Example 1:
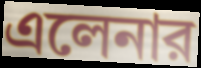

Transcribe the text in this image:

এলেনার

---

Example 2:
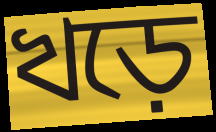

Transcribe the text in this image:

খড়ে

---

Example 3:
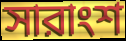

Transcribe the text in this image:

সারাংশ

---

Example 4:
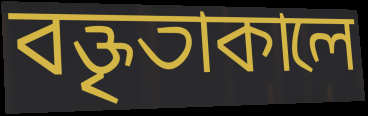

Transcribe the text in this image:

বক্তৃতাকালে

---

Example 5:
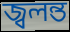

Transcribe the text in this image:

জ্বলন্ত